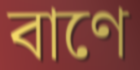
বাণে